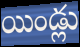
యిండ్లు